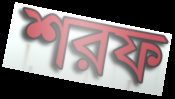
শরফ